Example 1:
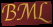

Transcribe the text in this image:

BML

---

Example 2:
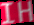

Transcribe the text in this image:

IH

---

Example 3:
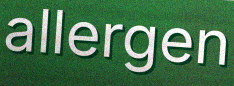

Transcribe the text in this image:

allergen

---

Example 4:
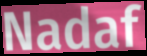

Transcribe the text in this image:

Nadaf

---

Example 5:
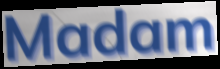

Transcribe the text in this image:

Madam